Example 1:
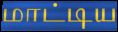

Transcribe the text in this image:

மாட்டிய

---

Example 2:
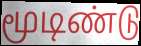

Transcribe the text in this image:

மூடிண்டு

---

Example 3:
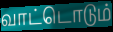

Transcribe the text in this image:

வாட்டொடும்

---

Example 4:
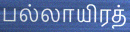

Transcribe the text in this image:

பல்லாயிரத்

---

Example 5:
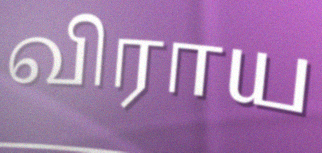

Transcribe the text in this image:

விராய